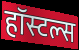
हॉस्टल्स